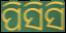
ପିସିସି